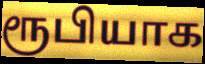
ரூபியாக